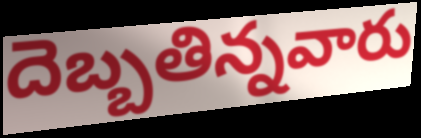
దెబ్బతిన్నవారు